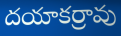
దయాకర్రావు